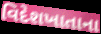
વિદેશખાતાના